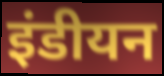
इंडीयन